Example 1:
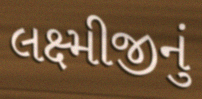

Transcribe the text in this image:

લક્ષ્મીજીનું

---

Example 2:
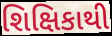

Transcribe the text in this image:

શિક્ષિકાથી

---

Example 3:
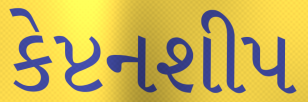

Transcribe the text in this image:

કેપ્ટનશીપ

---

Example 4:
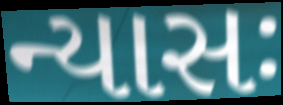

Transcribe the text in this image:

ન્યાસઃ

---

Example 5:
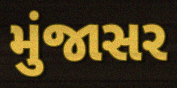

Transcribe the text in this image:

મુંજાસર